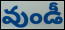
వుండీ